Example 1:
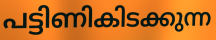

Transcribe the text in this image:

പട്ടിണികിടക്കുന്ന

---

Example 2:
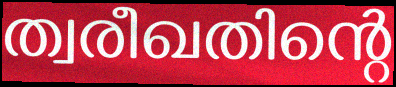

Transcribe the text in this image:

ത്വരീഖതിന്റെ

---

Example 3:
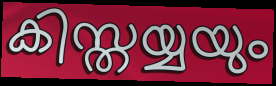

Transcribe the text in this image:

കിസ്തയ്യയും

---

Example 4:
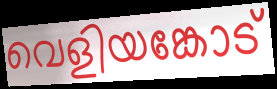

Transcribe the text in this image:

വെളിയങ്കോട്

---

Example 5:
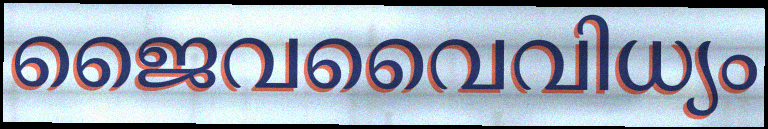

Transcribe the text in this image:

ജൈവവൈവിധ്യം